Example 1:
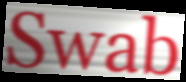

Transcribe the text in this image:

Swab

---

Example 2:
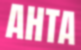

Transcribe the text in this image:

AHTA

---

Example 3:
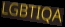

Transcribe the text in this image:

LGBTIQA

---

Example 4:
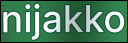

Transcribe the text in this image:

nijakko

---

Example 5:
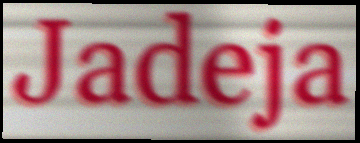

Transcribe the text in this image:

Jadeja